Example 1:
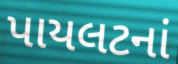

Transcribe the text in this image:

પાયલટનાં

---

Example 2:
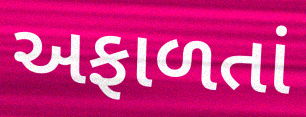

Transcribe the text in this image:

અફાળતાં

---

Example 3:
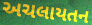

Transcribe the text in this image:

અચલાયતન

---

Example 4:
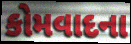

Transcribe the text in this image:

કોમવાદના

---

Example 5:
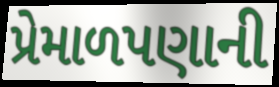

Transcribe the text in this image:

પ્રેમાળપણાની